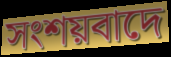
সংশয়বাদে